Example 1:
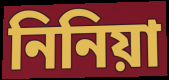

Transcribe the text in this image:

নিনিয়া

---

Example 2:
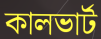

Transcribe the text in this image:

কালভার্ট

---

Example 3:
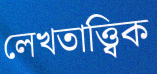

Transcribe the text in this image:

লেখতাত্ত্বিক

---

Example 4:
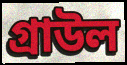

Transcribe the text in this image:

গ্রাউল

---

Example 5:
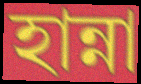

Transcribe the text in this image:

হান্না